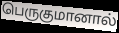
பெருகுமானால்